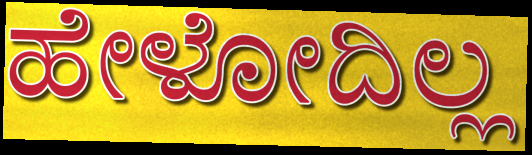
ಹೇಳೋದಿಲ್ಲ